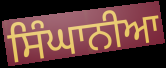
ਸਿੰਘਾਨੀਆ